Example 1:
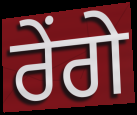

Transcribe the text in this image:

ਰੇਂਗੇ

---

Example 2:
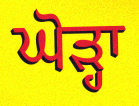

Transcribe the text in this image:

ਘੋੜ੍ਹਾ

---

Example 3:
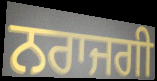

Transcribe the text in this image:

ਨਰਾਜਗੀ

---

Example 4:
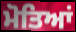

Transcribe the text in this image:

ਮੋਤਿਆਂ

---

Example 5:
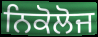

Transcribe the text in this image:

ਨਿਕੋਲੋਜ